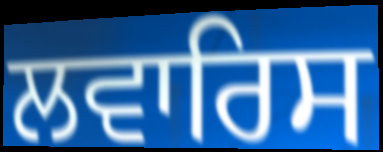
ਲਵਾਰਿਸ